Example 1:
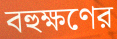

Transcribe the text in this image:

বহুক্ষণের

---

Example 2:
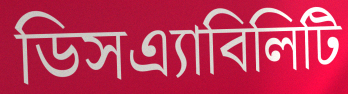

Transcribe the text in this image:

ডিসএ্যাবিলিটি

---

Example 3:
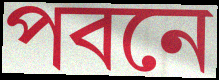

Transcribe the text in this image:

পবনে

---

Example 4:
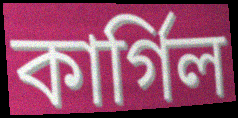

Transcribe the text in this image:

কার্গিল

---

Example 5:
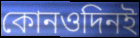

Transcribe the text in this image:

কোনওদিনই